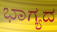
ಭಾಗ್ಯದ